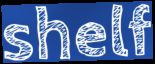
shelf